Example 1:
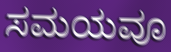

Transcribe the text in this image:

ಸಮಯವೂ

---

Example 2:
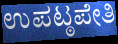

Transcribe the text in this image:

ಉಪಟ್ಠಪೇತಿ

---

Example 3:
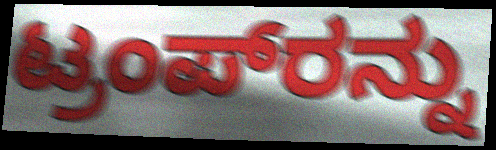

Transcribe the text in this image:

ಟ್ರಂಪ್‌ರನ್ನು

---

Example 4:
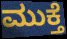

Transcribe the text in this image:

ಮುಕ್ತೆ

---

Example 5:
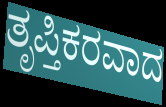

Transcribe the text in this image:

ತೃಪ್ತಿಕರವಾದ